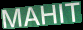
MAHIT